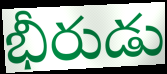
భీరుడు